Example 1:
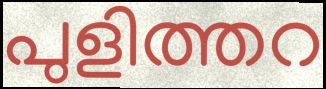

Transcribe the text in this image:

പുളിത്തറ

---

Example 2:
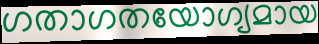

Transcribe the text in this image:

ഗതാഗതയോഗ്യമായ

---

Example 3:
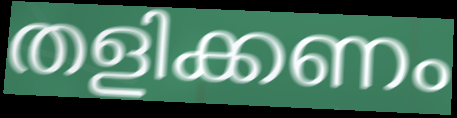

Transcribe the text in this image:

തളിക്കണം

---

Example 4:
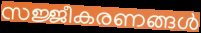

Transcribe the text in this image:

സജ്ജീകരണങ്ങൾ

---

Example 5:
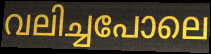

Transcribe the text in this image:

വലിച്ചപോലെ